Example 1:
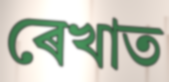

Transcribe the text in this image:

ৰেখাত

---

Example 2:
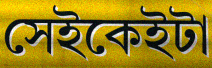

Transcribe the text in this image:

সেইকেইটা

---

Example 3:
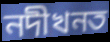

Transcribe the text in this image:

নদীখনত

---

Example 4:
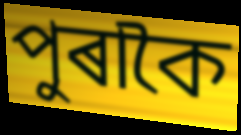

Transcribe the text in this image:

পুৰাকৈ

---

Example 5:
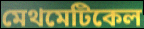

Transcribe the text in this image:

মেথমেটিকেল